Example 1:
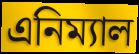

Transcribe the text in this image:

এনিম্যাল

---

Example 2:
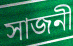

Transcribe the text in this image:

সাজনী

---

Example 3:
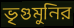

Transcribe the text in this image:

ভৃগুমুনির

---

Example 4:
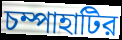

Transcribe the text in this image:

চম্পাহাটির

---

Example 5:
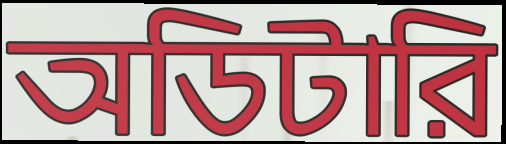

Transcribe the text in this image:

অডিটারি